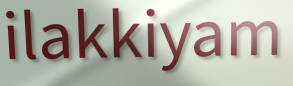
ilakkiyam